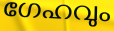
ഗേഹവും